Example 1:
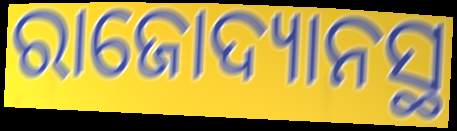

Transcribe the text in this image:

ରାଜୋଦ୍ୟାନସ୍ଥ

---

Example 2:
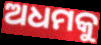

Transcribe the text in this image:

ଅଧମକୁ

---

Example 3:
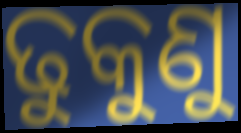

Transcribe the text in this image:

ଢୁକୁଣୁ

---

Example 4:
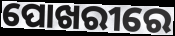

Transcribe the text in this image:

ପୋଖରୀରେ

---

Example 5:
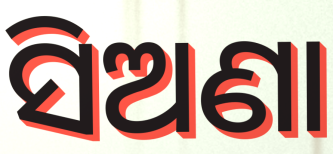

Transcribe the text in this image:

ସିଅଣା